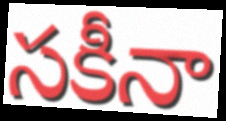
సకీనా